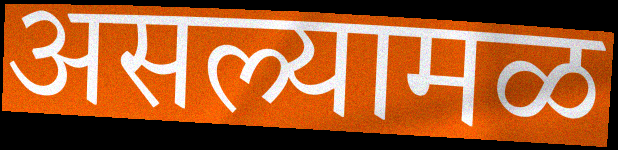
असल्यामळ